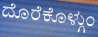
ದೊರೆಕೊಳ್ಗುಂ